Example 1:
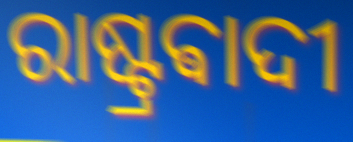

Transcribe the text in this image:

ରାଷ୍ଟ୍ରଵାଦୀ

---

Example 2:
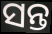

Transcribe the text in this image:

ସନ୍ତ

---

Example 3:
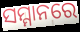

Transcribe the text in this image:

ସମ୍ମାନରେ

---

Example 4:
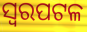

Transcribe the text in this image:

ସ୍ୱରପଟଳ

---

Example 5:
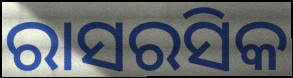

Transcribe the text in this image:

ରାସରସିକ